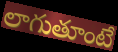
లాగుతూంటే